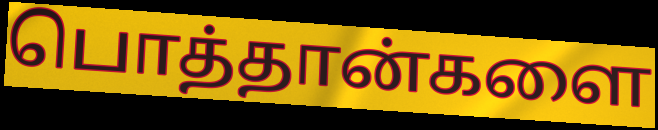
பொத்தான்களை